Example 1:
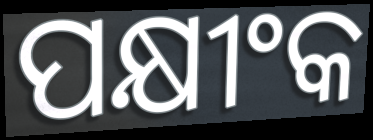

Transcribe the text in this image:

ପକ୍ଷୀଂକ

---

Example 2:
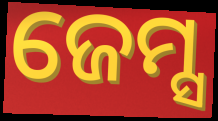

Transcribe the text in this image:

ଜେମ୍ସ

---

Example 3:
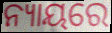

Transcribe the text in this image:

ନ୍ୟାୟରେ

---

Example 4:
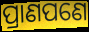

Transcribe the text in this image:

ପ୍ରାଣପଣେ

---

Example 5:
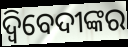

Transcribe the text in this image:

ଦ୍ଵିବେଦୀଙ୍କର